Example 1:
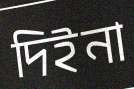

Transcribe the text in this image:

দিইনা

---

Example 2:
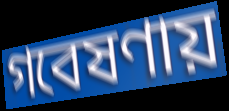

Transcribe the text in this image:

গবেষণায়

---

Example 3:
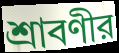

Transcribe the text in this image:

শ্রাবণীর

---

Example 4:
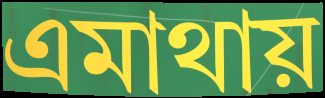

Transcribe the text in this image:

এমাথায়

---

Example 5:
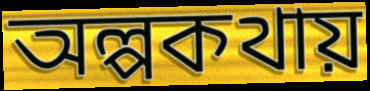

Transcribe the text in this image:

অল্পকথায়